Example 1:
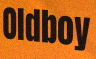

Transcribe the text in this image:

Oldboy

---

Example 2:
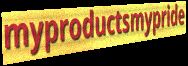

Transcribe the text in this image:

myproductsmypride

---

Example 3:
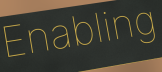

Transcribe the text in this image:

Enabling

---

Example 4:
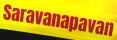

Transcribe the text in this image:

Saravanapavan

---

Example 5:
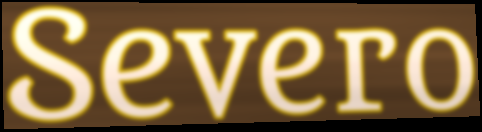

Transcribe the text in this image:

Severo